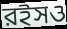
রইসও